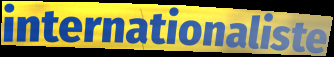
internationaliste